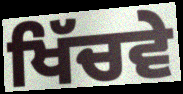
ਖਿੱਚਵੇ